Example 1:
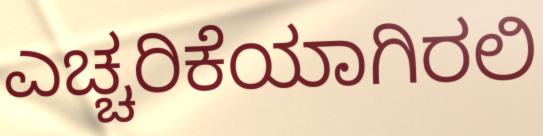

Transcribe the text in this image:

ಎಚ್ಚರಿಕೆಯಾಗಿರಲಿ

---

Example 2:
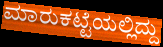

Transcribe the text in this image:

ಮಾರುಕಟ್ಟೆಯಲ್ಲಿದ್ದು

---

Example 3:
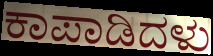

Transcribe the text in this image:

ಕಾಪಾಡಿದಳು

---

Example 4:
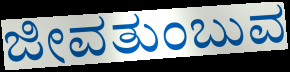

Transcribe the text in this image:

ಜೀವತುಂಬುವ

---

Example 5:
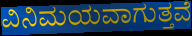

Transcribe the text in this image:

ವಿನಿಮಯವಾಗುತ್ತವೆ